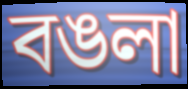
বঙলা